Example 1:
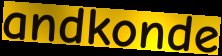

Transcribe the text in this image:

andkonde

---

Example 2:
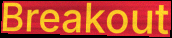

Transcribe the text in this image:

Breakout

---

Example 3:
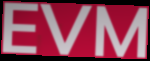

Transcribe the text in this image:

EVM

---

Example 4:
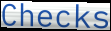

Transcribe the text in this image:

Checks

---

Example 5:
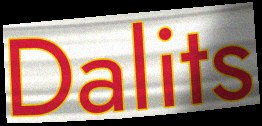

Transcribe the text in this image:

Dalits